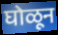
घोळून